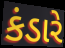
કંડારે